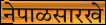
नेपाळसारखे